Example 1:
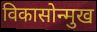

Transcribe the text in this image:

विकासोन्मुख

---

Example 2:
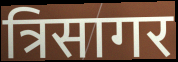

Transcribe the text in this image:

त्रिसागर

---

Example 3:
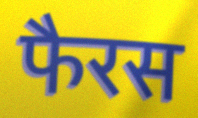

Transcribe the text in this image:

फैरस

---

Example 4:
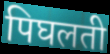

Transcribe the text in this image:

पिघलती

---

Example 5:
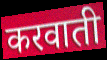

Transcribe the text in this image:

करवाती